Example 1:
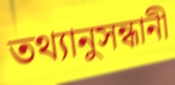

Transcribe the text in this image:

তথ্যানুসন্ধানী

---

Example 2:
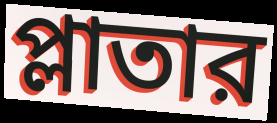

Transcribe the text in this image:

প্লাতার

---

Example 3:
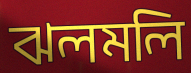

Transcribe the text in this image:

ঝলমলি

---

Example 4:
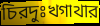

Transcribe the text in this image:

চিরদুঃখগাথার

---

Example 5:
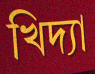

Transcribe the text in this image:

খিদ্যা